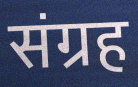
संग्रह